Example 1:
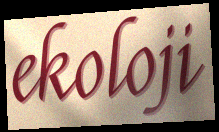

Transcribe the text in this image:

ekoloji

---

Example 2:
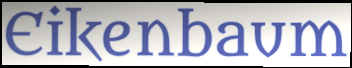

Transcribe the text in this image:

Eikenbaum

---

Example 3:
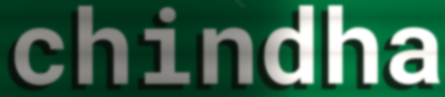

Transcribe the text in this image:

chindha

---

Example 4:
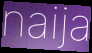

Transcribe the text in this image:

naija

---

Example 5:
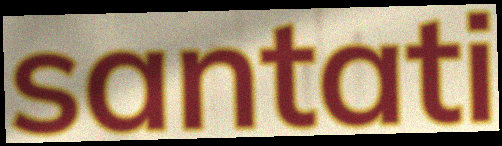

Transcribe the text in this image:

santati